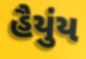
હૈયુંય